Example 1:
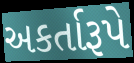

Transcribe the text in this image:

અકર્તારૂપે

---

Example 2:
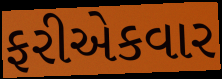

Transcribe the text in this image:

ફરીએકવાર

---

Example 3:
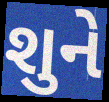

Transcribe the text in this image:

શુને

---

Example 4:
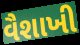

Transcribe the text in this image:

વૈશાખી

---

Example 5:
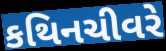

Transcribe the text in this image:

કથિનચીવરે